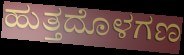
ಹುತ್ತದೊಳಗಣ